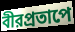
বীরপ্রতাপে